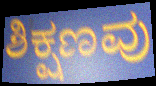
ಶಿಕ್ಷಣವು